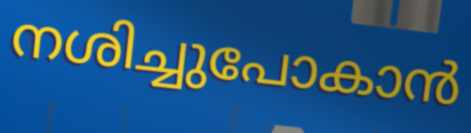
നശിച്ചുപോകാൻ